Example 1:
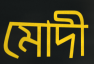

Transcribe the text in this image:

মোদী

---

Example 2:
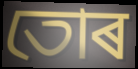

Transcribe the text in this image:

তোৰ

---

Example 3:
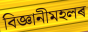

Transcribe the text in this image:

বিজ্ঞানীমহলৰ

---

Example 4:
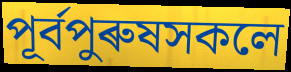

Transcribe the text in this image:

পূৰ্বপুৰুষসকলে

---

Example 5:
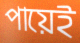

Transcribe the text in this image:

পায়েই